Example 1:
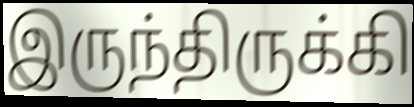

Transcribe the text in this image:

இருந்திருக்கி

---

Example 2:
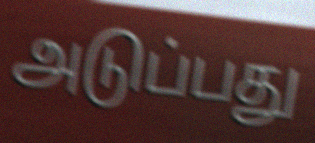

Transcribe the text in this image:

அடுப்பது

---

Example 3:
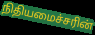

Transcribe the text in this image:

நிதியமைச்சரின்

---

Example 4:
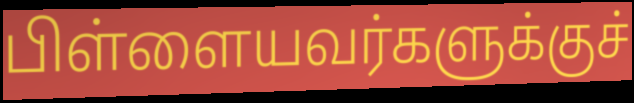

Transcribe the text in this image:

பிள்ளையவர்களுக்குச்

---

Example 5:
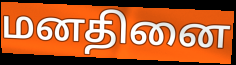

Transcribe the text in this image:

மனதினை